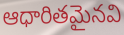
ఆధారితమైనవి